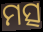
ମତ୍ସ